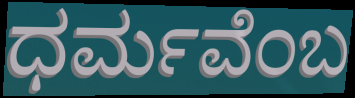
ಧರ್ಮವೆಂಬ